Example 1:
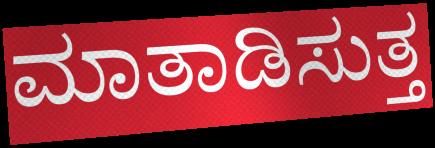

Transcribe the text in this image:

ಮಾತಾಡಿಸುತ್ತ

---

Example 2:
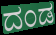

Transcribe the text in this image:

ದಂಡ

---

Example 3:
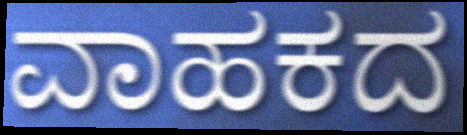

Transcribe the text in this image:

ವಾಹಕದ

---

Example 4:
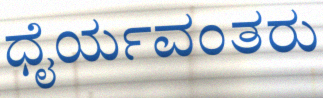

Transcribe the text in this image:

ಧೈರ್ಯವಂತರು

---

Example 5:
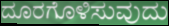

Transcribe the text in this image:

ದೂರಗೊಳಿಸುವುದು